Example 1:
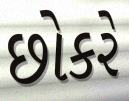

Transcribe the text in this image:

છોકરે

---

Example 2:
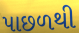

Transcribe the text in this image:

પાછળથી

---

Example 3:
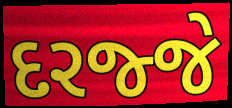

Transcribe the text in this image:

દરજ્જે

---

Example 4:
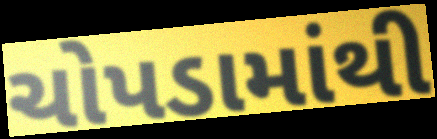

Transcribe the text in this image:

ચોપડામાંથી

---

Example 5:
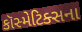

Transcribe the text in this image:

કૉસ્મેટિક્સના